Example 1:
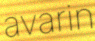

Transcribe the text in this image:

avarin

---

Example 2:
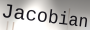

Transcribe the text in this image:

Jacobian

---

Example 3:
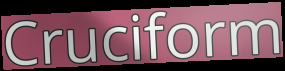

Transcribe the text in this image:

Cruciform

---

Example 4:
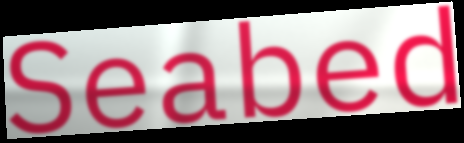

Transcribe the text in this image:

Seabed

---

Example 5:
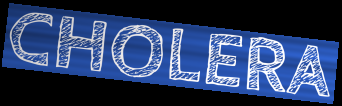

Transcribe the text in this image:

CHOLERA